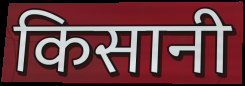
किसानी